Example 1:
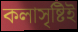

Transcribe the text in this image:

কলাসৃষ্টিই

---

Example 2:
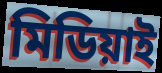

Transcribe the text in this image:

মিডিয়াই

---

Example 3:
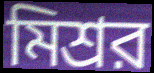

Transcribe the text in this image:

মিশ্রর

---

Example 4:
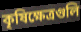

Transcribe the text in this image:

কৃষিক্ষেত্রগুলি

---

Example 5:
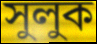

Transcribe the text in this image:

সুলুক